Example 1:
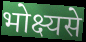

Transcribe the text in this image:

भोक्ष्यसे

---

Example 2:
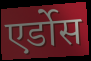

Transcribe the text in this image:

एर्डोस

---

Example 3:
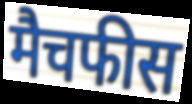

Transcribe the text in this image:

मैचफीस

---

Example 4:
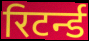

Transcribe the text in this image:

रिटर्न्ड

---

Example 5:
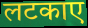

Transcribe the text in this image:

लटकाए